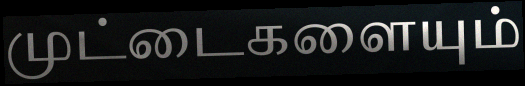
முட்டைகளையும்